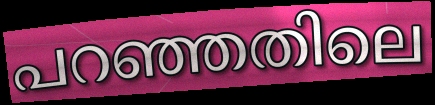
പറഞ്ഞതിലെ